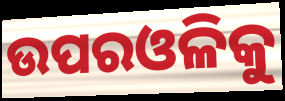
ଉପରଓଳିକୁ